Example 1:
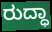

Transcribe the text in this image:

ರುದ್ಧಾ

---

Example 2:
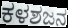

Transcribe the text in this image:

ಕಳಶಜನ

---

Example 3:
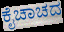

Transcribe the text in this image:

ಕೈಚಾಚದ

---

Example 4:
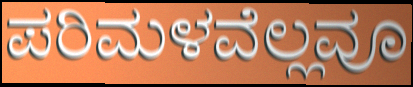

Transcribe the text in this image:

ಪರಿಮಳವೆಲ್ಲವೂ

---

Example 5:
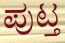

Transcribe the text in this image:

ಪುಟ್ತ